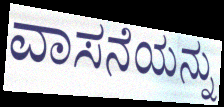
ವಾಸನೆಯನ್ನು